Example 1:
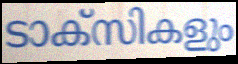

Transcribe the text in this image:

ടാക്സികളും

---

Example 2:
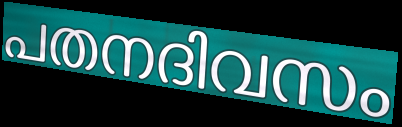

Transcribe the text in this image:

പതനദിവസം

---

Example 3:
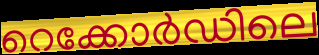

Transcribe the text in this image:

റെക്കോർഡിലെ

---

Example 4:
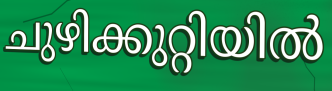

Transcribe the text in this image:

ചുഴിക്കുറ്റിയിൽ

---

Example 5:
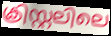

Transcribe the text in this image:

ക്രിസ്റ്റലിലെ